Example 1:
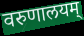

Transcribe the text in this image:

वरुणालयम्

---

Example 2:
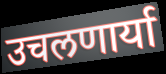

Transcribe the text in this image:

उचलणार्या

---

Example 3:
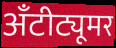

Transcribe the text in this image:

अँटीट्यूमर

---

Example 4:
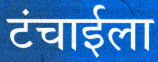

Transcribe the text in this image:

टंचाईला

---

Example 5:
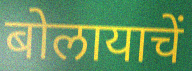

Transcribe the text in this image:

बोलायाचें